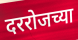
दररोजच्या